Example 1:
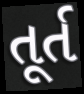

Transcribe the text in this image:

તૂર્ત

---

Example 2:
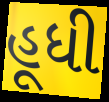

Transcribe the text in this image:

હૂધી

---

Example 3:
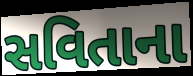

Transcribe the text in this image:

સવિતાના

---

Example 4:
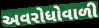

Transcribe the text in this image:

અવરોધોવાળી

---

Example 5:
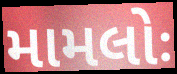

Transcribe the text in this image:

મામલોઃ